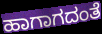
ಹಾಗಾಗದಂತೆ